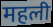
महली